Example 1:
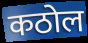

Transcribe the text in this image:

कठोल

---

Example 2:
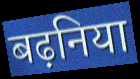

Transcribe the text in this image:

बढ़निया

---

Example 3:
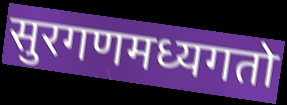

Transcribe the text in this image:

सुरगणमध्यगतो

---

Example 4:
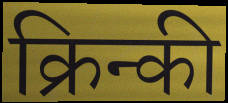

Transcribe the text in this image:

क्रिन्की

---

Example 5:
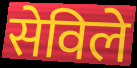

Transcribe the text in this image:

सेविले